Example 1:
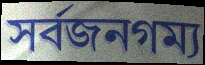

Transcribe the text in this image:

সর্বজনগম্য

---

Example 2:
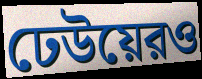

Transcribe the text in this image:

ঢেউয়েরও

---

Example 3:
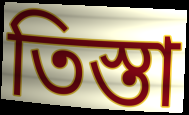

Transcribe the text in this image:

তিস্তা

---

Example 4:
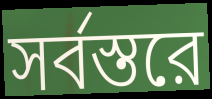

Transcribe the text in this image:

সর্বস্তরে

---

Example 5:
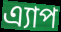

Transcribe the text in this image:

এ্যাপ